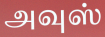
அவுஸ்